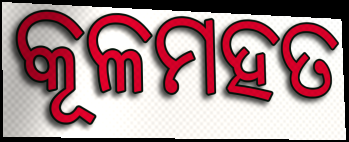
କୂଳମହତ